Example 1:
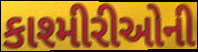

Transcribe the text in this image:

કાશ્મીરીઓની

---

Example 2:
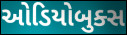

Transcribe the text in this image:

ઓડિયોબુક્સ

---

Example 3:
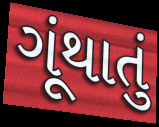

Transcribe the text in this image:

ગૂંથાતું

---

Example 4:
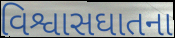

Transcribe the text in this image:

વિશ્વાસઘાતના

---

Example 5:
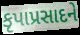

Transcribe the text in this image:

કૃપાપ્રસાદને